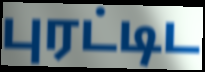
புரட்டிட